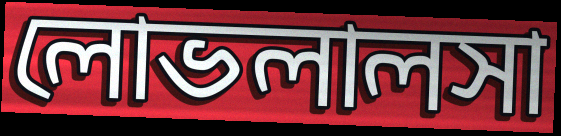
লোভলালসা